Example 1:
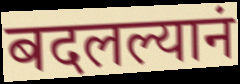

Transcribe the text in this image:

बदलल्यानं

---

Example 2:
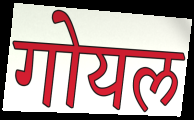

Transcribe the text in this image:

गोयल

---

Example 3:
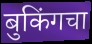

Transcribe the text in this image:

बुकिंगचा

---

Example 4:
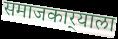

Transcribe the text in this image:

समाजकार्याला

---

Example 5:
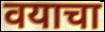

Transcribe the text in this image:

वयाचा